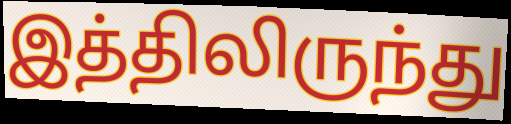
இத்திலிருந்து